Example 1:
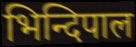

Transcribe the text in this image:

भिन्दिपाल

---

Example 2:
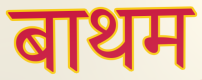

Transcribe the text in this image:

बाथम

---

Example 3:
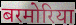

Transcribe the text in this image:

बरमोरिया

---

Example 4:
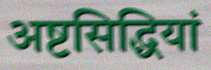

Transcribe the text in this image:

अष्टसिद्धियां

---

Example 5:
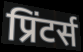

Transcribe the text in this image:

प्रिंटर्स